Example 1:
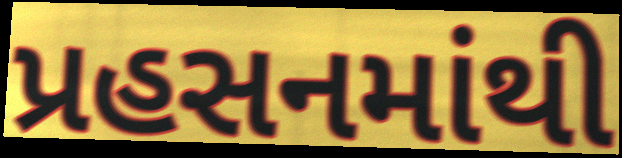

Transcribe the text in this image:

પ્રહસનમાંથી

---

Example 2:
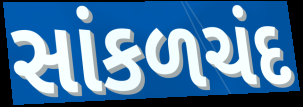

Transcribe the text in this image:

સાંકળચંદ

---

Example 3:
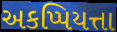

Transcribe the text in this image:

અકપ્પિયત્તા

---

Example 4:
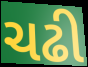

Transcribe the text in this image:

ચઢી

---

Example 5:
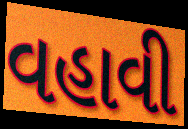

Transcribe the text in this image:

વહાવી